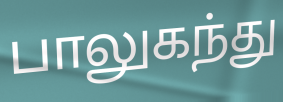
பாலுகந்து